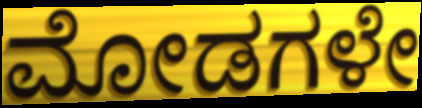
ಮೋಡಗಳೇ